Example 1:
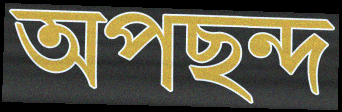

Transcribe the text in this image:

অপছন্দ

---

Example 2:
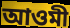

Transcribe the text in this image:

আওমী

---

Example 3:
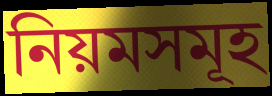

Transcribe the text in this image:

নিয়মসমূহ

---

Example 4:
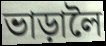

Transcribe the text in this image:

ভাড়ালৈ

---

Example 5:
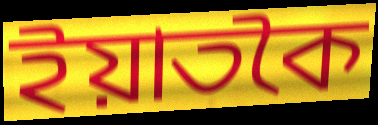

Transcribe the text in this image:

ইয়াতকৈ